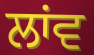
ਲਾਂਵ